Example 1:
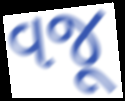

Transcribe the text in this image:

વજૂ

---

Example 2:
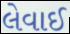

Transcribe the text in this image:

લેવાઈ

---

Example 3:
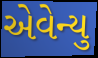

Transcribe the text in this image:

એવેન્યુ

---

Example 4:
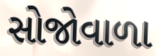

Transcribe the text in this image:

સોજોવાળા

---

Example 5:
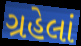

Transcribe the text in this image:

ગ્રહેલાં